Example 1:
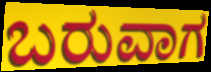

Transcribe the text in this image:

ಬರುವಾಗ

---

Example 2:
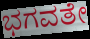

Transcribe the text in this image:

ಭಗವತೇ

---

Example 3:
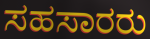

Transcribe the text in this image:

ಸಹಸಾರರು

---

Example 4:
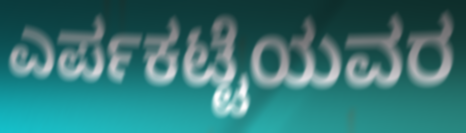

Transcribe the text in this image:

ಎರ್ಪಕಟ್ಟೆಯವರ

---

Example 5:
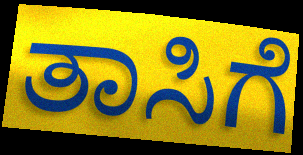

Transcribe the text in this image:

ತಾಸಿಗೆ